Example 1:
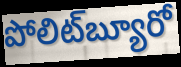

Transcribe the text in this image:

పోలిట్‌బ్యూరో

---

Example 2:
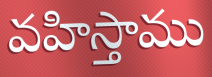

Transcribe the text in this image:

వహిస్తాము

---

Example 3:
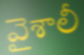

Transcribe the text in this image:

వైశాలీ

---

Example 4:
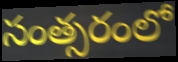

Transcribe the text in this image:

సంత్సరంలో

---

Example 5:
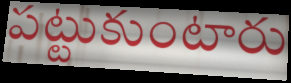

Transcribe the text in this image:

పట్టుకుంటారు